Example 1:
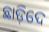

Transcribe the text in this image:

ଛାଡ଼ିଦେ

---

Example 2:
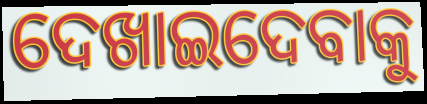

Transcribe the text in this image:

ଦେଖାଇଦେବାକୁ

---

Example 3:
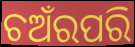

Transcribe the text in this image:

ଚଅଁରପରି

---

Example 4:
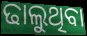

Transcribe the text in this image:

ଢାଲୁଥିବା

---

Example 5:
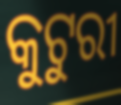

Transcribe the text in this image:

କୁଟୁରୀ